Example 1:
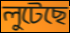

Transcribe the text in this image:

লুটেছে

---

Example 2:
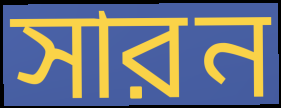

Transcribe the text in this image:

সারন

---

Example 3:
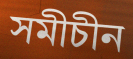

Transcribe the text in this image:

সমীচীন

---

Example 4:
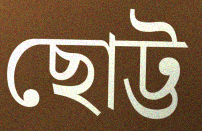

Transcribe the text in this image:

ছোট্ট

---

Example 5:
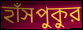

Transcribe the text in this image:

হাঁসপুকুর